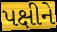
પક્ષીને